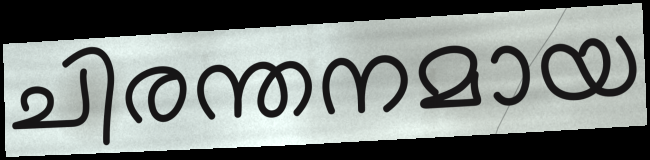
ചിരന്തനമായ